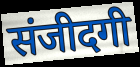
संजीदगी